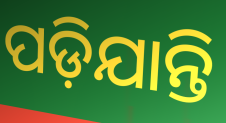
ପଡ଼ିଯାନ୍ତି